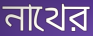
নাথের